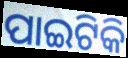
ପାଇଟିକି